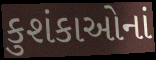
કુશંકાઓનાં